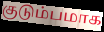
குடும்பமாக